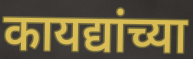
कायद्यांच्या